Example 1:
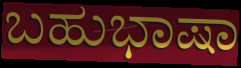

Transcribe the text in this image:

ಬಹುಭಾಷಾ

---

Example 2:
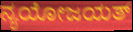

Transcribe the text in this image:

ನ್ಯಯೋಜಯತ್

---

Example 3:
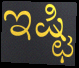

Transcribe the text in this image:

ಇಷ್ಟಿ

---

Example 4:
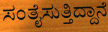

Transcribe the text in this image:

ಸಂತೈಸುತ್ತಿದ್ದಾನೆ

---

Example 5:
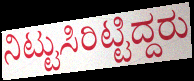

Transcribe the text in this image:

ನಿಟ್ಟುಸಿರಿಟ್ಟಿದ್ದರು